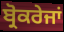
ਬ੍ਰੋਕਰੇਜਾਂ